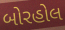
બોરહોલ